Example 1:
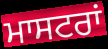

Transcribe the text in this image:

ਮਾਸਟਰਾਂ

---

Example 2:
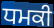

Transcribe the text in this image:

ਧਮਕੀ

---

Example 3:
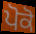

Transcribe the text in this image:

ਪੋਕੋ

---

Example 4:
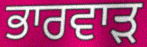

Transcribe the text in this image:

ਭਾਰਵਾੜ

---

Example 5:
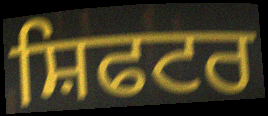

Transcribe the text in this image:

ਸ਼ਿਫਟਰ